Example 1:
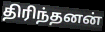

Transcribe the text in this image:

திரிந்தனன்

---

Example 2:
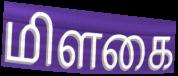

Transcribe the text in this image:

மிளகை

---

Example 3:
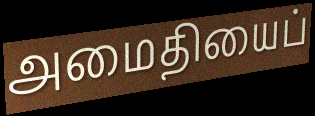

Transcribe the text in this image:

அமைதியைப்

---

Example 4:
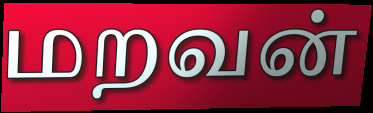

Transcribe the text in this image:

மறவன்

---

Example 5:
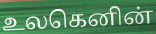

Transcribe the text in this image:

உலகெனின்